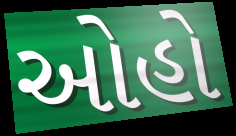
ઓહો